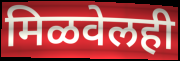
मिळवेलही